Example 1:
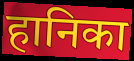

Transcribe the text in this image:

हानिका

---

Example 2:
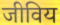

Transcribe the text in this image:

जीविय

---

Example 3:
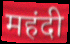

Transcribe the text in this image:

महंदी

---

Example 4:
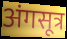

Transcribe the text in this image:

अंगसूत्र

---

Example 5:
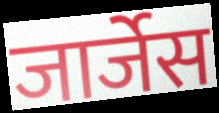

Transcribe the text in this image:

जार्जेस